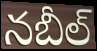
నబీల్